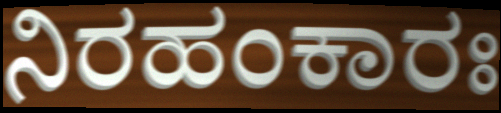
ನಿರಹಂಕಾರಃ